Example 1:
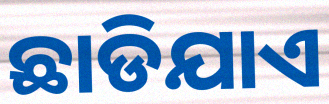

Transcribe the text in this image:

ଛାଡିଯାଏ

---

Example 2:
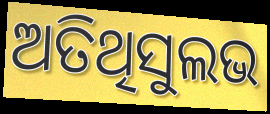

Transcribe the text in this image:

ଅତିଥିସୁଲଭ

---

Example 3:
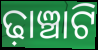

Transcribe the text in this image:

ଢ଼ାଞ୍ଚାଟି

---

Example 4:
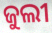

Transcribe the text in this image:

ଜୁଲୀ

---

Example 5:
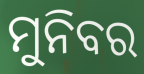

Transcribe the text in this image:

ମୁନିବର